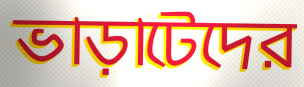
ভাড়াটেদের